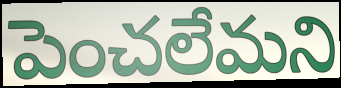
పెంచలేమని